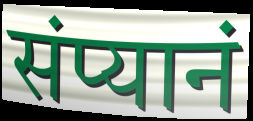
संप्यानं